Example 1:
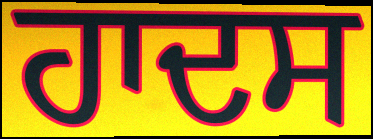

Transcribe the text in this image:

ਹਾਦਸ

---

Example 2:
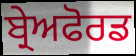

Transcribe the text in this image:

ਬ੍ਰੇਅਫੋਰਡ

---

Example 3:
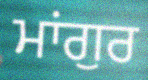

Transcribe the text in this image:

ਮਾਂਗੁਰ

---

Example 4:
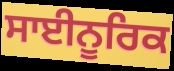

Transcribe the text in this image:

ਸਾਈਨੂਰਿਕ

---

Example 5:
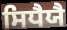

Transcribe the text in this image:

ਸਿਧੈਯੈ